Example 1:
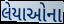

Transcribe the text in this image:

લેયાઓના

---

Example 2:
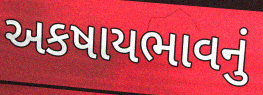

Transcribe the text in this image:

અકષાયભાવનું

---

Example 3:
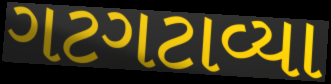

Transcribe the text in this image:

ગટગટાવ્યા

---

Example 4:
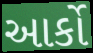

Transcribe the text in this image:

આર્કો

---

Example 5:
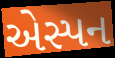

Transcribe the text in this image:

એસ્પન